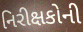
નિરીક્ષકોની